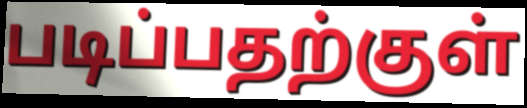
படிப்பதற்குள்